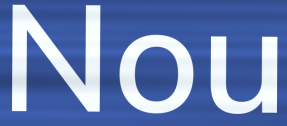
Nou